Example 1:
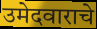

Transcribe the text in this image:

उमेदवाराचे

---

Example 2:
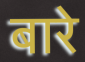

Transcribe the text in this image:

बारे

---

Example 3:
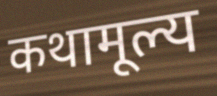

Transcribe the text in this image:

कथामूल्य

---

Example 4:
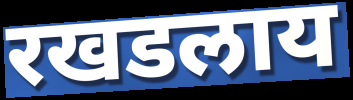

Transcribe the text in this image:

रखडलाय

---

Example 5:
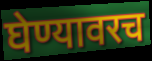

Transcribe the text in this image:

घेण्यावरच